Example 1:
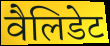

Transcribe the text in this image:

वैलिडेट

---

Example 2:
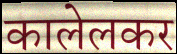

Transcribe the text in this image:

कालेलकर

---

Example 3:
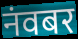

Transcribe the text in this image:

नंवबर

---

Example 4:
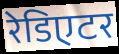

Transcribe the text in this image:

रेडिएटर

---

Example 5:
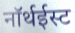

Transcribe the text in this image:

नॉर्थईस्‍ट